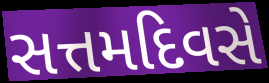
સત્તમદિવસે